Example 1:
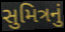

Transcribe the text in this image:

સુમિત્રનું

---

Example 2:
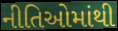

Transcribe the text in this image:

નીતિઓમાંથી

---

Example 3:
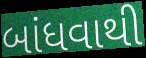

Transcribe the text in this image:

બાંધવાથી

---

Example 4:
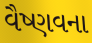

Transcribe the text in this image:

વૈષ્ણવના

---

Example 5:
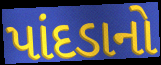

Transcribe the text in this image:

પાંદડાનો